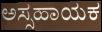
ಅಸ್ಸಹಾಯಕ